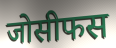
जोसीफस